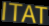
ITAT